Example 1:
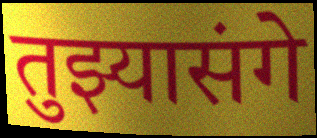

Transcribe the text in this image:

तुझ्यासंगे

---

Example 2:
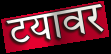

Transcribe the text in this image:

टयावर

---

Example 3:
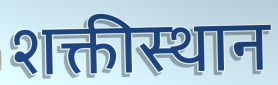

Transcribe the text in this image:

शक्तीस्थान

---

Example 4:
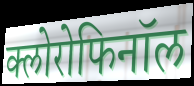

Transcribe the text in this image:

क्लोरोफिनॉल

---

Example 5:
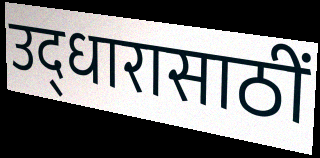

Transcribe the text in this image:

उद्धारासाठीं